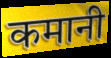
कमानी